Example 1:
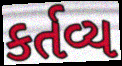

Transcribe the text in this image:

કર્તવ્ય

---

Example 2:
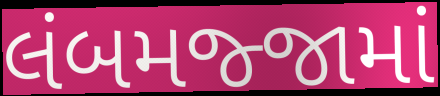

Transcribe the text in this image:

લંબમજ્જામાં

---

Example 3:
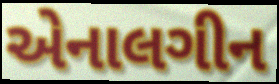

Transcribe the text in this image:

એનાલગીન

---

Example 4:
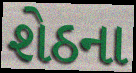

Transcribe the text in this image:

શેઠના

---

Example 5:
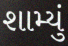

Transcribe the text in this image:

શામ્યું